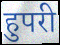
हुपरी